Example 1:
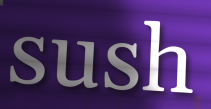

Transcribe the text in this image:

sush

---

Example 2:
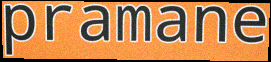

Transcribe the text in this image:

pramane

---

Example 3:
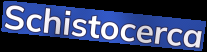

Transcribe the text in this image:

Schistocerca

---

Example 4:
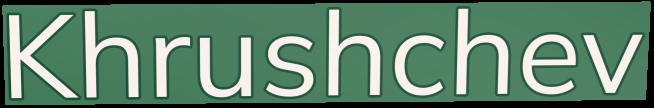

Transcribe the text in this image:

Khrushchev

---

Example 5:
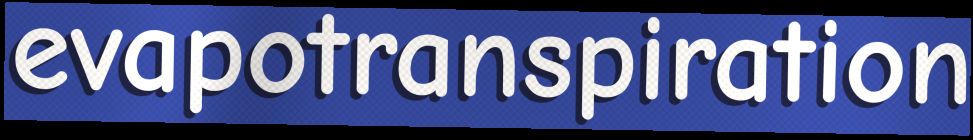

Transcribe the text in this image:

evapotranspiration